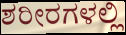
ಶರೀರಗಳಲ್ಲಿ